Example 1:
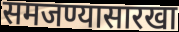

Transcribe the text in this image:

समजण्यासारखा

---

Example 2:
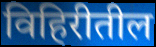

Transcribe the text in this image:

विहिरीतील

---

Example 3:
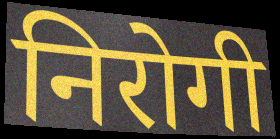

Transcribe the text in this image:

निरोगी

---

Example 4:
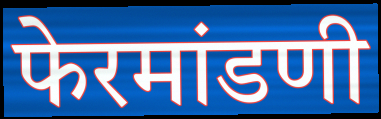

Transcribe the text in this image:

फेरमांडणी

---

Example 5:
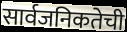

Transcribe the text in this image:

सार्वजनिकतेची